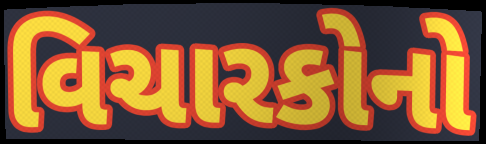
વિચારકોનો